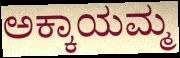
ಅಕ್ಕಾಯಮ್ಮ